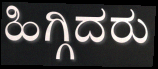
ಹಿಗ್ಗಿದರು